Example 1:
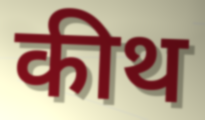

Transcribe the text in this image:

कीथ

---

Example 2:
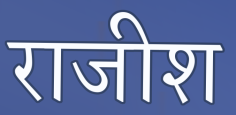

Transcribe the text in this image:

राजीश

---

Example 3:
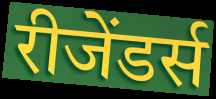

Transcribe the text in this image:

रीजेंडर्स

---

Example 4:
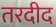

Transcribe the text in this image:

तरदीद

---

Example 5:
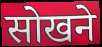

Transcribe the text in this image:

सोखने